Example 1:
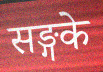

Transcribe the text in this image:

सङ्गके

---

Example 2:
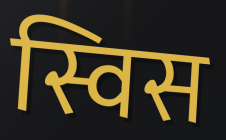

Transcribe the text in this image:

स्विस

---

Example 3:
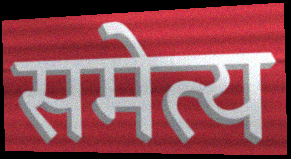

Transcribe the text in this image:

समेत्य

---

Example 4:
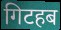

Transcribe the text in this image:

गिटहब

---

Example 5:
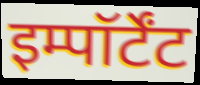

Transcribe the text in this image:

इम्पॉर्टेंट